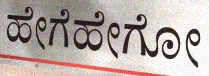
ಹೇಗೆಹೇಗೋ